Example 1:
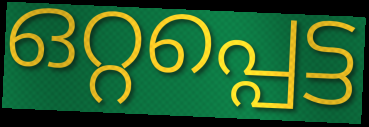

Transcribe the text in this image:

ഒറ്റപ്പെട്ട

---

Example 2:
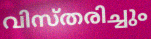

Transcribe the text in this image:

വിസ്തരിച്ചും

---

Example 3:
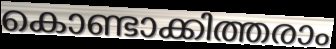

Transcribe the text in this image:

കൊണ്ടാക്കിത്തരാം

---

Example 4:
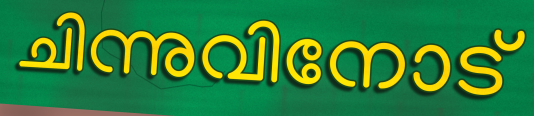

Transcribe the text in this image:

ചിന്നുവിനോട്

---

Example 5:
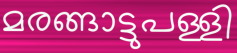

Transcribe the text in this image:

മരങ്ങാട്ടുപള്ളി